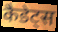
कैडेट्स